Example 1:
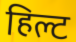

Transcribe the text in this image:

हिल्ट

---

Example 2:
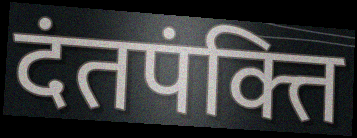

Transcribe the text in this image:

दंतपंक्ति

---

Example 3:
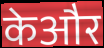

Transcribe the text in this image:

केऔर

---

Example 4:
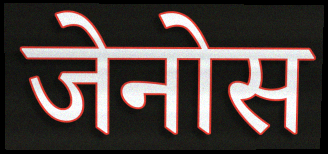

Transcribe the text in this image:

जेनोस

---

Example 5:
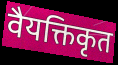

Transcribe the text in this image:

वैयक्तिकृत